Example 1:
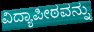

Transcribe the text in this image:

ವಿದ್ಯಾಪೀಠವನ್ನು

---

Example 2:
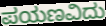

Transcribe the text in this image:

ಪಯಣವಿದು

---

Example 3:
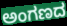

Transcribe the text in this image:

ಅಂಗಣದ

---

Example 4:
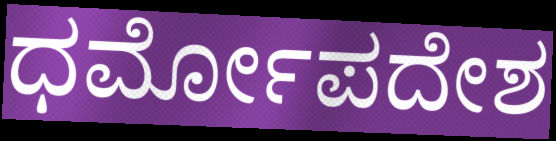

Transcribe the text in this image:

ಧರ್ಮೋಪದೇಶ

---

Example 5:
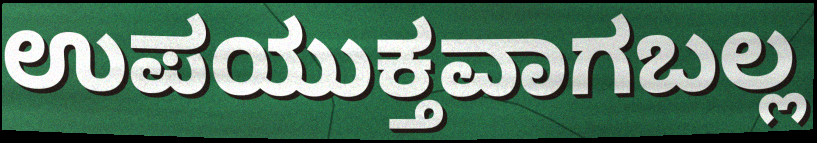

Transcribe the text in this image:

ಉಪಯುಕ್ತವಾಗಬಲ್ಲ